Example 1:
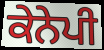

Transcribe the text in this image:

ਕੇਨੇਪੀ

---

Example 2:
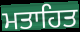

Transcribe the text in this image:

ਮਤਾਹਿਤ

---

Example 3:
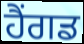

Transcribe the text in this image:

ਹੈਂਗਡ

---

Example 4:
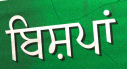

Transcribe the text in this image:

ਬਿਸ਼ਪਾਂ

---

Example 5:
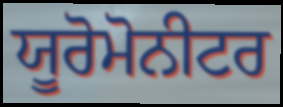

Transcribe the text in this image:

ਯੂਰੋਮੋਨੀਟਰ